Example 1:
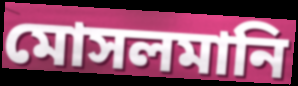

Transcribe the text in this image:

মোসলমানি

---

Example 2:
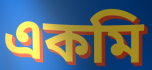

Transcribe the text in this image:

একমি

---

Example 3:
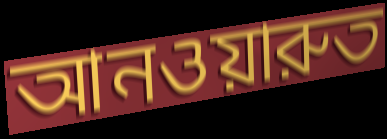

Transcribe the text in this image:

আনওয়ারুত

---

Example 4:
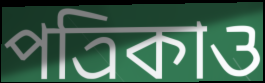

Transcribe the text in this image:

পত্রিকাও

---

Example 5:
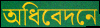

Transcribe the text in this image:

অধিবেদনে